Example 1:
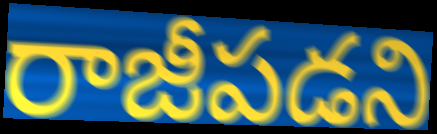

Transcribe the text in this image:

రాజీపడని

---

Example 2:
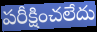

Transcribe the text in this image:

పరీక్షించలేదు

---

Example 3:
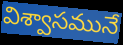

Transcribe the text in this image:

విశ్వాసమునే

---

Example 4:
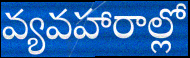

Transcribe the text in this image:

వ్యవహారాల్లో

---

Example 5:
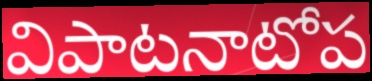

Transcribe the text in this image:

విపాటనాటోప